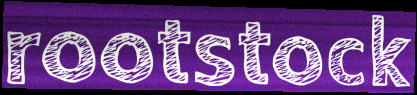
rootstock